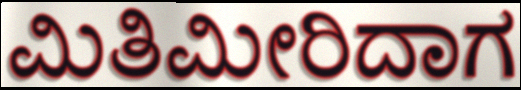
ಮಿತಿಮೀರಿದಾಗ